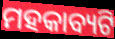
ମହକାବ୍ୟଟି